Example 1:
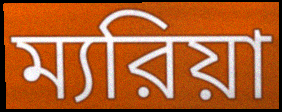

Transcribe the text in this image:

ম্যরিয়া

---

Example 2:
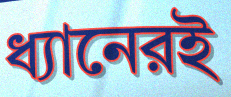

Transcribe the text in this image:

ধ্যানেরই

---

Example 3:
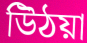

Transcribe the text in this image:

উিঠয়া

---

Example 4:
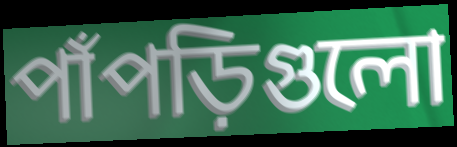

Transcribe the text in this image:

পাঁপড়িগুলো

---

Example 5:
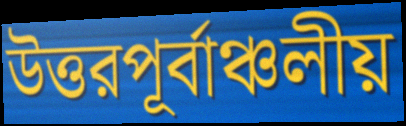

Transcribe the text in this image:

উত্তরপূর্বাঞ্চলীয়